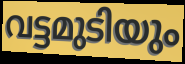
വട്ടമുടിയും